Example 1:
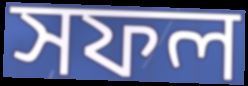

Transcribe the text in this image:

সফল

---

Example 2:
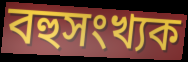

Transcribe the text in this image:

বহুসংখ্যক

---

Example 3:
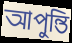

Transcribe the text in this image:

আপুন্তি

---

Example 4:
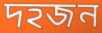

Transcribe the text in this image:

দহজন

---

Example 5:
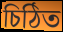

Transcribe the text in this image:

চিঠিত